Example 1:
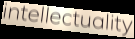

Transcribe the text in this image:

intellectuality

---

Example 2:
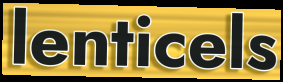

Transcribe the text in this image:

lenticels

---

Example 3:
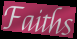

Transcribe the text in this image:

Faiths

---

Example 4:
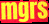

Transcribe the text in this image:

mgrs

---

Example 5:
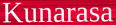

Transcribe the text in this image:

Kunarasa